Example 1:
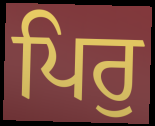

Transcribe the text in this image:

ਪਿਰੁ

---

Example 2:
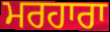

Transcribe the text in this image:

ਮਰਹਾਰਾ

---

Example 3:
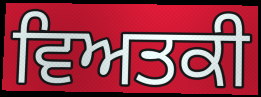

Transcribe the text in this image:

ਵਿਅਤਕੀ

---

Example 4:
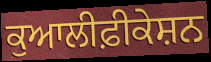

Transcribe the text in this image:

ਕੁਆਲੀਫ਼ੀਕੇਸ਼ਨ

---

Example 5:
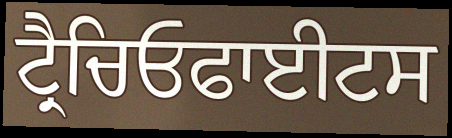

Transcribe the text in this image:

ਟ੍ਰੈਚਿਓਫਾਈਟਸ